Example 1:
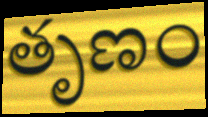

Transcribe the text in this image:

తృణం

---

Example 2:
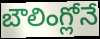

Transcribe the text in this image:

బౌలింగ్లోనే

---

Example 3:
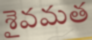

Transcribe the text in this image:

శైవమత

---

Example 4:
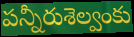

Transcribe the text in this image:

పన్నీరుశెల్వంకు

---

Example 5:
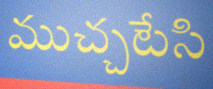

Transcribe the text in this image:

ముచ్చటేసి